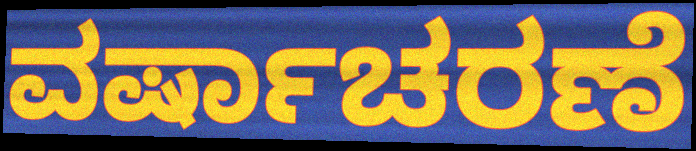
ವರ್ಷಾಚರಣೆ